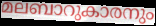
മലബാറുകാരനും